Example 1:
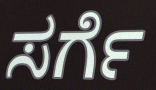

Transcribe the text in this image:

ಸರ್ಗೆ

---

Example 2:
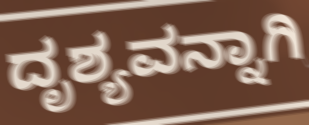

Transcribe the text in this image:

ದೃಶ್ಯವನ್ನಾಗಿ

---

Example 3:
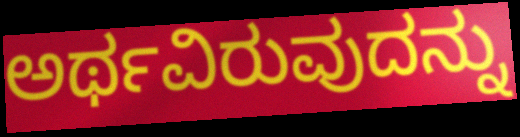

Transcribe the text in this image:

ಅರ್ಥವಿರುವುದನ್ನು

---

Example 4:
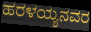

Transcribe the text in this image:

ಹರಳಯ್ಯನವರ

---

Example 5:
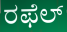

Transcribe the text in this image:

ರಫೆಲ್